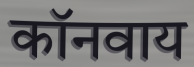
कॉनवाय